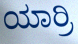
ಯಾರ್ರಿ